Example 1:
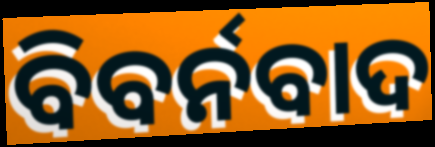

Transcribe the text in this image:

ବିବର୍ନବାଦ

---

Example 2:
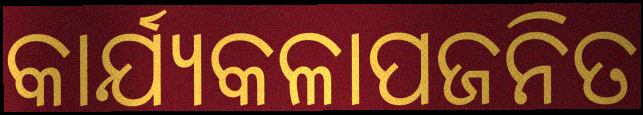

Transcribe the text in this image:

କାର୍ଯ୍ୟକଳାପଜନିତ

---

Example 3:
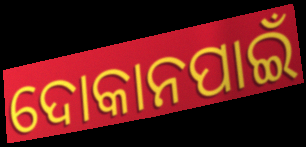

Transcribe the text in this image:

ଦୋକାନପାଇଁ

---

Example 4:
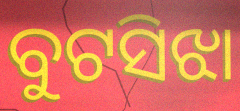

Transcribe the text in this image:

ବୁଟସିଝା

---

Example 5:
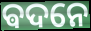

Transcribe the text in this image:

ଵଦନେ